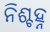
ନିଶ୍ଚହ୍ନ